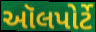
ઑલપોર્ટે